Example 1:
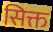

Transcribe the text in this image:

सिक्त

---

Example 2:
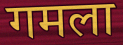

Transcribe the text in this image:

गमला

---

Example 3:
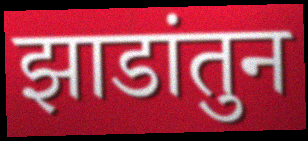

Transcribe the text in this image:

झाडांतुन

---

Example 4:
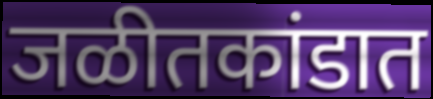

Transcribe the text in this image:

जळीतकांडात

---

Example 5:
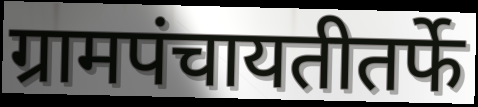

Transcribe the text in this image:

ग्रामपंचायतीतर्फे